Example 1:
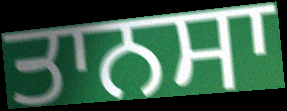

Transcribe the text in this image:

ਤਾਨਸਾ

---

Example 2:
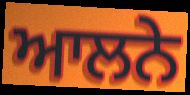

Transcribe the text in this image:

ਆਲਨੇ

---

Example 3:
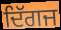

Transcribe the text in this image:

ਦਿੱਗਜ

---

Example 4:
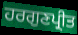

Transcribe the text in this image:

ਹਰਗੁਣਪ੍ਰੀਤ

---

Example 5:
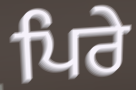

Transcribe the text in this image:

ਪਿਰੇ